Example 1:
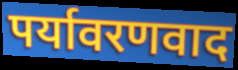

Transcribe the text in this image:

पर्यावरणवाद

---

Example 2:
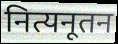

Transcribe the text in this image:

नित्यनूतन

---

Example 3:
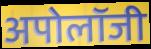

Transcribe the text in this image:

अपोलॉजी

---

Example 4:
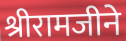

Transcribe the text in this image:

श्रीरामजीने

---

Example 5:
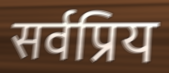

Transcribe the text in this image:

सर्वप्रिय